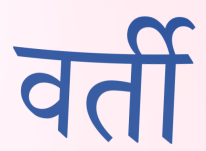
वर्ती